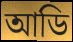
আডি